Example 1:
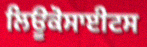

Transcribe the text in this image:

ਲਿਊਕੋਸਾਈਟਸ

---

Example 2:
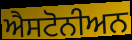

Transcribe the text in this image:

ਐਸਟੋਨੀਅਨ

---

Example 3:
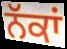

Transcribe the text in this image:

ਨੱਕਾਂ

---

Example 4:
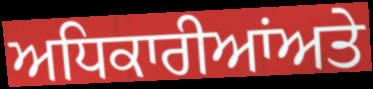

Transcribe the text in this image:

ਅਧਿਕਾਰੀਆਂਅਤੇ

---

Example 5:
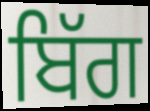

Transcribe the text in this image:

ਬਿੱਗ